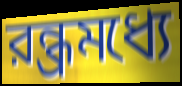
রন্ধ্রমধ্যে